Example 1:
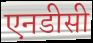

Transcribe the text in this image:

एनडीसी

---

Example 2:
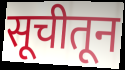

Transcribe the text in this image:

सूचीतून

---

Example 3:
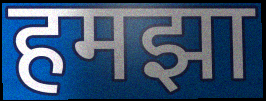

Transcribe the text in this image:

हमझा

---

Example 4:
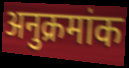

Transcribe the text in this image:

अनुक्रमांक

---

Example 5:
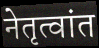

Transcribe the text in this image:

नेतृत्वांत